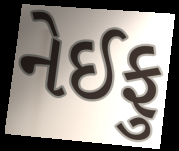
નેઈફુ